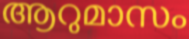
ആറുമാസം